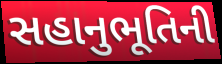
સહાનુભૂતિની